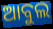
ଆବୁଲ